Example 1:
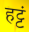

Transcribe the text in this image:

हट्टं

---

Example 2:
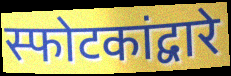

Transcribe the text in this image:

स्फोटकांद्वारे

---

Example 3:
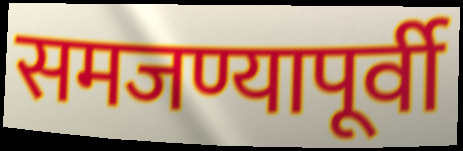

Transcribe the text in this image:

समजण्यापूर्वी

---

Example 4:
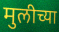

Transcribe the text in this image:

मुलीच्‍या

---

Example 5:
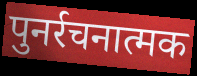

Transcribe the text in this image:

पुनर्रचनात्मक